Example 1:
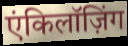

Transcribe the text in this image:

एंकिलॉज़िंग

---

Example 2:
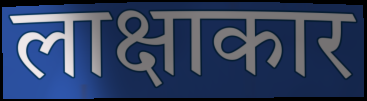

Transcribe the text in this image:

लाक्षाकार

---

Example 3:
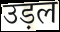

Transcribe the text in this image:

उड़ल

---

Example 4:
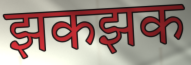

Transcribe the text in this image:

झकझक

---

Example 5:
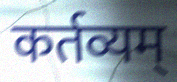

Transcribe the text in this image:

कर्तव्यम्